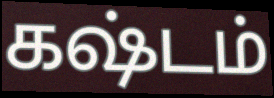
கஷ்டம்